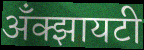
अँक्झायटी